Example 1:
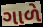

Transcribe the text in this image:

ગાળે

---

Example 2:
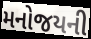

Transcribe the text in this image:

મનોજયની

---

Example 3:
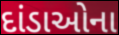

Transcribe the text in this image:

દાંડાઓના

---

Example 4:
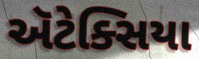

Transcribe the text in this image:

ઍટેક્સિયા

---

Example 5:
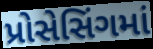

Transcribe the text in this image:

પ્રોસેસિંગમાં